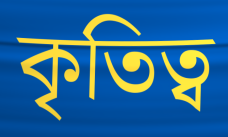
কৃতিত্ব